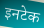
इनटेक